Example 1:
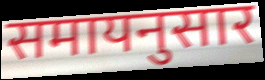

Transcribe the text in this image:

समायनुसार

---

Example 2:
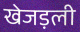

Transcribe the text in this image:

खेजड़ली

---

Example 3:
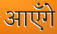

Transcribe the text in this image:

आएँगे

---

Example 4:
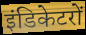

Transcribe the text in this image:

इंडिकेटरों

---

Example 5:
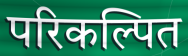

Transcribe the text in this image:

परिकल्पित